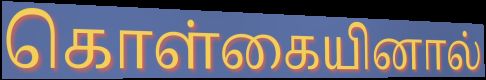
கொள்கையினால்